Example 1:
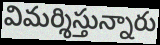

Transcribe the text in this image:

విమర్శిస్తున్నారు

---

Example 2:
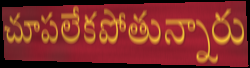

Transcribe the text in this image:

చూపలేకపోతున్నారు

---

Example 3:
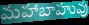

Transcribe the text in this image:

మహాబాహువు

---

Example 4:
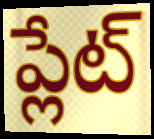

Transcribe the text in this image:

ప్లేట్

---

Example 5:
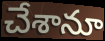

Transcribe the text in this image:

చేశానూ